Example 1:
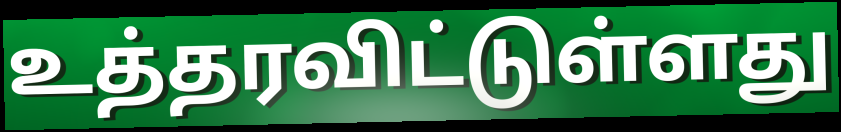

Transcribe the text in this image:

உத்தரவிட்டுள்ளது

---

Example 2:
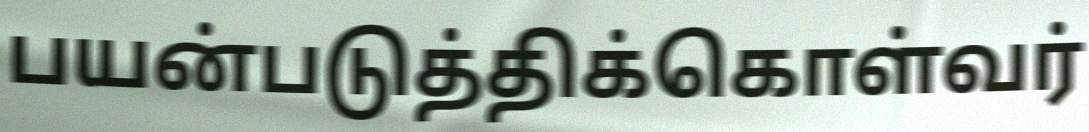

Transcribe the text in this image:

பயன்படுத்திக்கொள்வர்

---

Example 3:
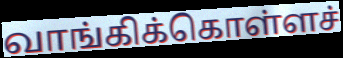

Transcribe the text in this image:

வாங்கிக்கொள்ளச்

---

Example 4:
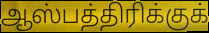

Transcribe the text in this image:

ஆஸ்பத்திரிக்குக்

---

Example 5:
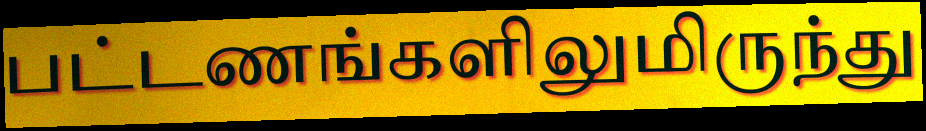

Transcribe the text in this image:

பட்டணங்களிலுமிருந்து